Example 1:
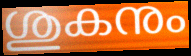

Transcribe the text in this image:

ശുകനും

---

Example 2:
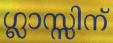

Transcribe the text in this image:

ഗ്ലാസ്സിന്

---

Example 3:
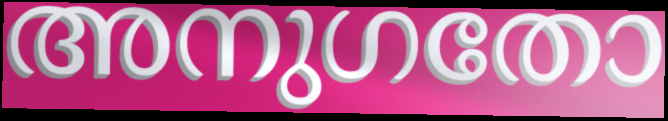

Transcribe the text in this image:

അനുഗതോ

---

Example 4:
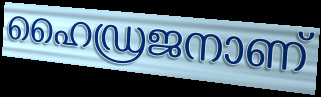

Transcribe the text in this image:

ഹൈഡ്രജനാണ്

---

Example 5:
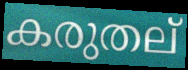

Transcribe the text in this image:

കരുതല്